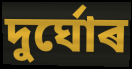
দুৰ্ঘোৰ